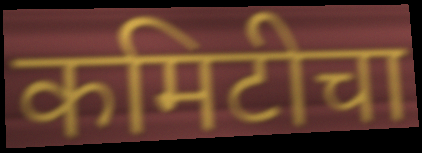
कमिटीचा